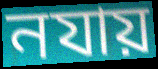
নযায়